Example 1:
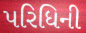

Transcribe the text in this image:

પરિધિની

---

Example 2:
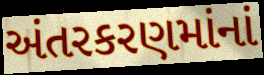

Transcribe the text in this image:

અંતરકરણમાંનાં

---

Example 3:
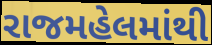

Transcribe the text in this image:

રાજમહેલમાંથી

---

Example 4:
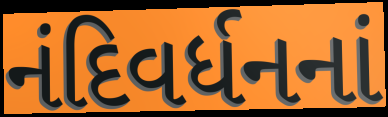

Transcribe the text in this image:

નંદિવર્ધનનાં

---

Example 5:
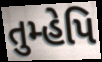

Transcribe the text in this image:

તુમ્હેપિ